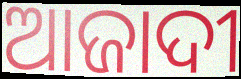
ଆଜାଦୀ